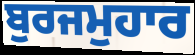
ਬੁਰਜਮੁਹਾਰ